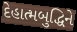
દેહાત્મબુદ્ધિને